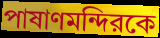
পাষাণমন্দিরকে